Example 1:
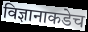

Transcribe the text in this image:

विज्ञानाकडेच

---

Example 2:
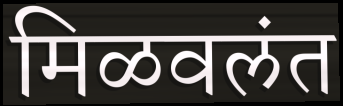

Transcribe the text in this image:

मिळवलंत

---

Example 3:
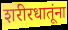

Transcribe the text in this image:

शरीरधातूंना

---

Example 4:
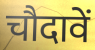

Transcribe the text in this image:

चौदावें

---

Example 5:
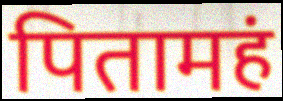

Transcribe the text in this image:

पितामहं